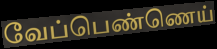
வேப்பெண்ணெய்